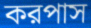
করপাস